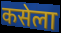
कसेला